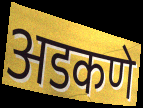
अडकणे